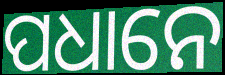
ପଧାନେ